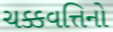
ચક્કવત્તિનો